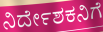
ನಿರ್ದೇಶಕನಿಗೆ